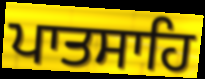
ਪਾਤਸਾਹਿ